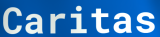
Caritas